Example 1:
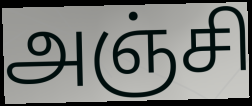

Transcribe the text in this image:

அஞ்சி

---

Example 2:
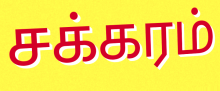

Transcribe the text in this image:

சக்கரம்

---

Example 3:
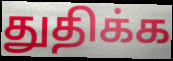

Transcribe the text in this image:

துதிக்க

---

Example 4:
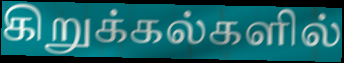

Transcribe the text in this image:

கிறுக்கல்களில்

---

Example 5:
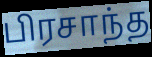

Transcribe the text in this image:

பிரசாந்த